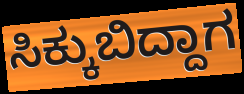
ಸಿಕ್ಕುಬಿದ್ದಾಗ